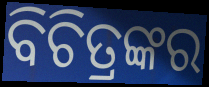
ବିଚିତ୍ରଙ୍କର